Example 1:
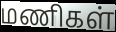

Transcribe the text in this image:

மணிகள்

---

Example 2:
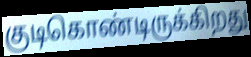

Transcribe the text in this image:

குடிகொண்டிருக்கிறது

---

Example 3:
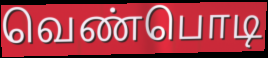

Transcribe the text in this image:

வெண்பொடி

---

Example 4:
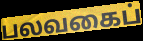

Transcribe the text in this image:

பலவகைப்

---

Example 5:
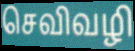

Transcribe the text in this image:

செவிவழி